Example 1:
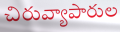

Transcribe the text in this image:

చిరువ్యాపారుల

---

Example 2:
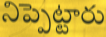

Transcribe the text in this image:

నిప్పెట్టారు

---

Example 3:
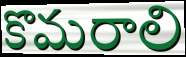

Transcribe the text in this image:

కొమరాలి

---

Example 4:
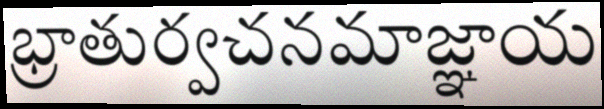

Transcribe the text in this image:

భ్రాతుర్వచనమాజ్ఞాయ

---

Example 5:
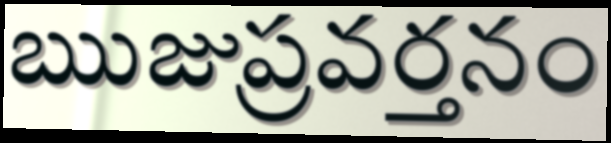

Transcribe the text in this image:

ఋజుప్రవర్తనం